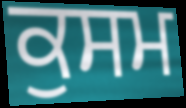
ਕੁਸਮ